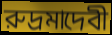
রুদ্রমাদেবী